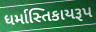
ધર્માસ્તિકાયરૂપ